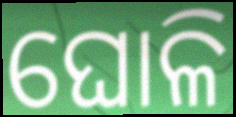
ଘୋଳି